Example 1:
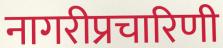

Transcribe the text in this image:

नागरीप्रचारिणी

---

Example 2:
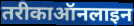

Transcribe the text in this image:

तरीकाऑनलाइन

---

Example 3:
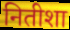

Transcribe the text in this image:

नितीशा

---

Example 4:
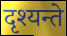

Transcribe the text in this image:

दृश्यन्ते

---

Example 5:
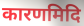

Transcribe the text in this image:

कारणमिदि